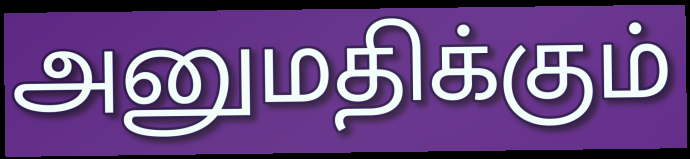
அனுமதிக்கும்